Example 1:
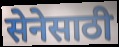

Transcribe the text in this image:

सेनेसाठी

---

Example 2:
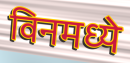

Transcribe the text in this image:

विनमध्ये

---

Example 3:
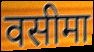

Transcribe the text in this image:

वसीमा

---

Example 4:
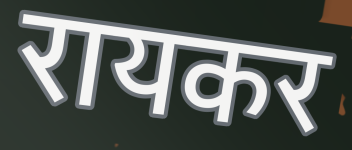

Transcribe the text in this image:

रायकर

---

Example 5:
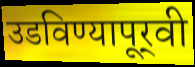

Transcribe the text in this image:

उडविण्यापूर्वी